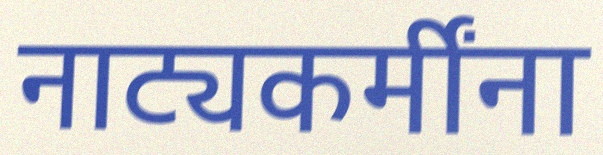
नाट्यकर्मींना